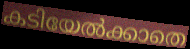
കടിയേൽക്കാതെ